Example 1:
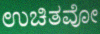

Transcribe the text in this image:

ಉಚಿತವೋ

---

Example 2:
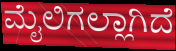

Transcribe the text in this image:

ಮೈಲಿಗಲ್ಲಾಗಿದೆ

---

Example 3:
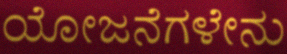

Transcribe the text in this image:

ಯೋಜನೆಗಳೇನು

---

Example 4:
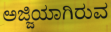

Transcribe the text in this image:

ಅಜ್ಜಿಯಾಗಿರುವ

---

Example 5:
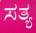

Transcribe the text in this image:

ಸತ್ಯ